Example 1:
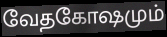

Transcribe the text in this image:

வேதகோஷமும்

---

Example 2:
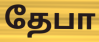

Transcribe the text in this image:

தேபா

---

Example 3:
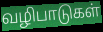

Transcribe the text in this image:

வழிபாடுகள்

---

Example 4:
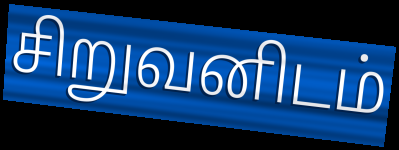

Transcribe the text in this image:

சிறுவனிடம்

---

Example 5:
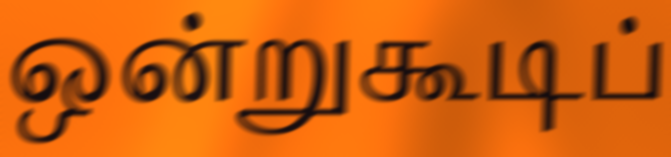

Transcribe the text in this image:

ஒன்றுகூடிப்